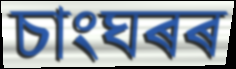
চাংঘৰৰ